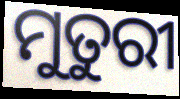
ମୁତୁରୀ